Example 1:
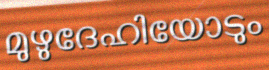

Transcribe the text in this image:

മുഴുദേഹിയോടും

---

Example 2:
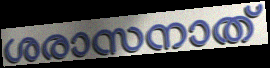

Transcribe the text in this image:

ശരാസനാത്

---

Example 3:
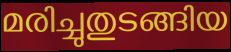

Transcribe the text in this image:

മരിച്ചുതുടങ്ങിയ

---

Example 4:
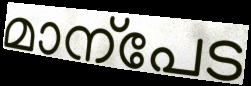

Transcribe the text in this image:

മാന്പേട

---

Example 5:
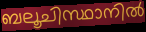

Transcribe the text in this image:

ബലൂചിസ്ഥാനിൽ